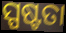
ସ୍ପଷ୍ଟତା